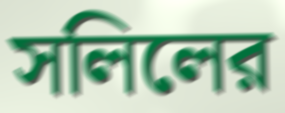
সলিলের